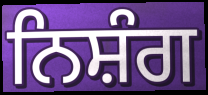
ਨਿਸ਼ੰਗ